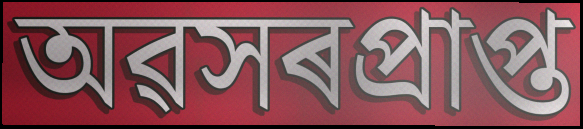
অৱসৰপ্ৰাপ্ত